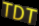
TDT